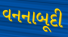
વનનાબૂદી